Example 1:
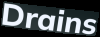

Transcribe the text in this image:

Drains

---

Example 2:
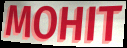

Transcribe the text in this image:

MOHIT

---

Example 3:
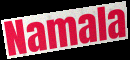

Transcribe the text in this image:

Namala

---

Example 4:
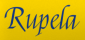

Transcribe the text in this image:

Rupela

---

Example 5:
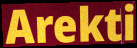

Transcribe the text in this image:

Arekti